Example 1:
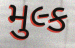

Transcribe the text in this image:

મુલ્ક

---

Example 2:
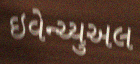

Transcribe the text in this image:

ઇવેન્ચ્યુઅલ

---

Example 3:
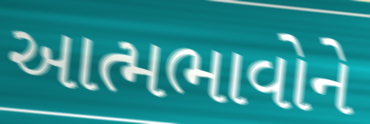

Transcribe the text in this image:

આત્મભાવોને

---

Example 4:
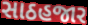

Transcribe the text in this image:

સાઠહજાર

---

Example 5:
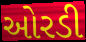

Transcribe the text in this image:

ઓરડી